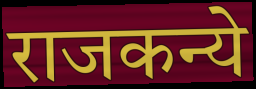
राजकन्ये